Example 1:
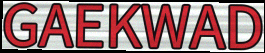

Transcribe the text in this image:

GAEKWAD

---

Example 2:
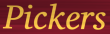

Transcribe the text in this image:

Pickers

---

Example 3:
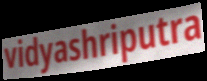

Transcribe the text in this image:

vidyashriputra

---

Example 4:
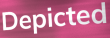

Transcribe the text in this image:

Depicted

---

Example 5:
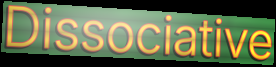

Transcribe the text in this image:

Dissociative